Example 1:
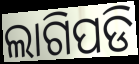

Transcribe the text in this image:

ଲାଗିପଡି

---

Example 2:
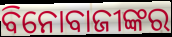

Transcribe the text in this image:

ବିନୋବାଜୀଙ୍କର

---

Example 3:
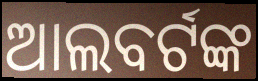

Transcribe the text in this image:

ଆଲବର୍ଟଙ୍କ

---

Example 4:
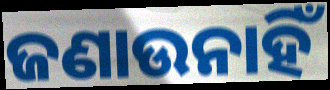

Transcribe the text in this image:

ଜଣାଉନାହିଁ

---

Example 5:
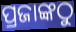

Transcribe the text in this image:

ପ୍ରଜାଙ୍କଠୁ